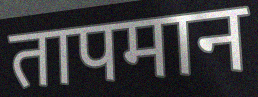
तापमान